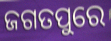
ଜଗତପୁରେ